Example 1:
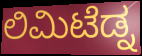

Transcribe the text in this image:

ಲಿಮಿಟೆಡ್ನ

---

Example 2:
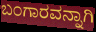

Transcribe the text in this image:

ಬಂಗಾರವನ್ನಾಗಿ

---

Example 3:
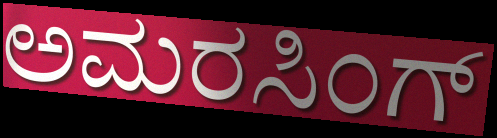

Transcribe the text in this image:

ಅಮರಸಿಂಗ್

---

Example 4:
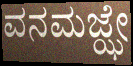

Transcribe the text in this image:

ವನಮಜ್ಝೇ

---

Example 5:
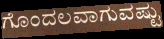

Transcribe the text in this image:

ಗೊಂದಲವಾಗುವಷ್ಟು